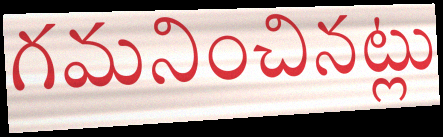
గమనించినట్లు